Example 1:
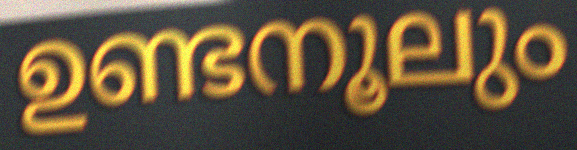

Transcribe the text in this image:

ഉണ്ടനൂലും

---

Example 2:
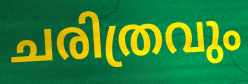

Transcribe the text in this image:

ചരിത്രവും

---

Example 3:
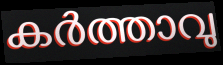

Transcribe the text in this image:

കർത്താവു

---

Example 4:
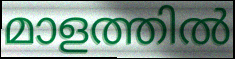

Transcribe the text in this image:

മാളത്തിൽ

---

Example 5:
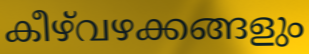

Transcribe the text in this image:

കീഴ്‌വഴക്കങ്ങളും